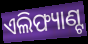
ଏଲିଫ୍ୟାଣ୍ଟ